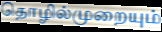
தொழில்முறையும்